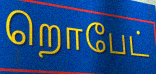
றொபேட்